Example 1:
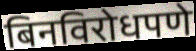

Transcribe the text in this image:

बिनविरोधपणे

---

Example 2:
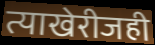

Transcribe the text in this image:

त्याखेरीजही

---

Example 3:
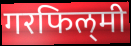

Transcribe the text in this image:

गरफिल्मी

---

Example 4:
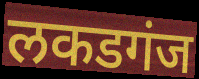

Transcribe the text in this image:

लकडगंज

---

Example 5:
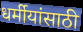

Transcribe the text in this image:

धर्मीयांसाठी